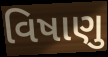
વિષાણુ